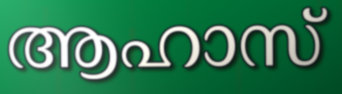
ആഹാസ്